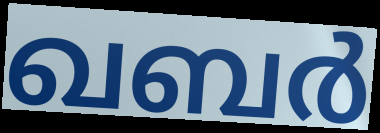
ഖബർ